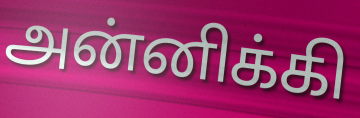
அன்னிக்கி